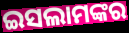
ଇସଲାମଙ୍କର